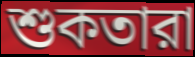
শুকতারা